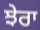
ਝੇਰਾ